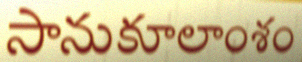
సానుకూలాంశం